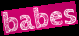
babes